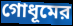
গোধূমের